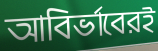
আবির্ভাবেরই